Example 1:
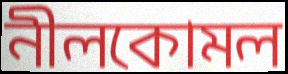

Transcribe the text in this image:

নীলকোমল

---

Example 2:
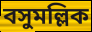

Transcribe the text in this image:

বসুমল্লিক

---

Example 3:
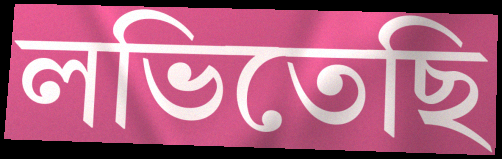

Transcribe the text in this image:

লভিতেছি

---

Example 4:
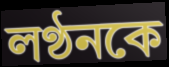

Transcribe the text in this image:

লণ্ঠনকে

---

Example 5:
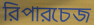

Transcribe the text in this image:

রিপারচেজ